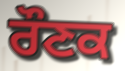
ਰੌਣਕ